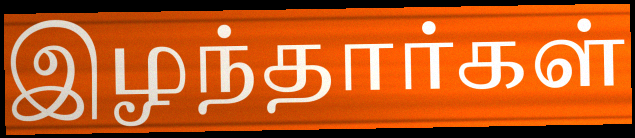
இழந்தார்கள்